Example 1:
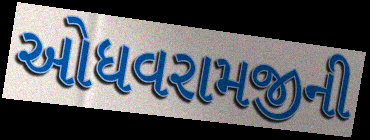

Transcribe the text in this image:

ઓધવરામજીની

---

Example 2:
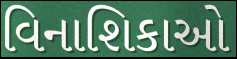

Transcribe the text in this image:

વિનાશિકાઓ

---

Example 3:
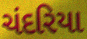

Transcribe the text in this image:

ચંદરિયા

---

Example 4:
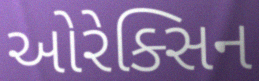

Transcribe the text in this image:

ઓરેક્સિન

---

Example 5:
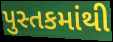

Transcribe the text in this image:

પુસ્તકમાંથી